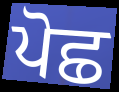
ਪੋਛ